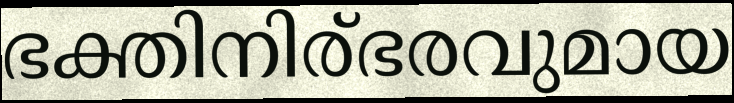
ഭക്തിനിര്ഭരവുമായ